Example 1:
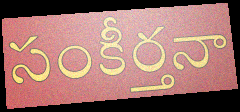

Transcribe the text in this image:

సంకీర్తనా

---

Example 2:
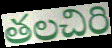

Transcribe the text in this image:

తలచిరి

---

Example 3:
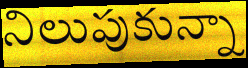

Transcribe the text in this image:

నిలుపుకున్నా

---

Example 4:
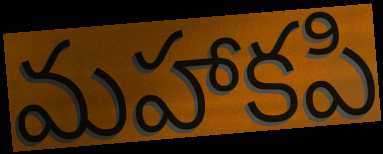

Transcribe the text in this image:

మహాకపి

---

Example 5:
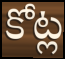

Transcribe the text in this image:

కోట్ల